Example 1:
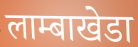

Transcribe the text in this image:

लाम्बाखेडा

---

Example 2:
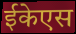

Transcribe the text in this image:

ईकेएस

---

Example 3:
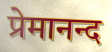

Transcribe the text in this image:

प्रेमानन्द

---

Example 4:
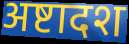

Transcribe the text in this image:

अष्टादश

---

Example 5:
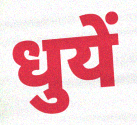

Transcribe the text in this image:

धुयें